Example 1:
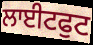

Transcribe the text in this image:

ਲਾਈਟਫੁਟ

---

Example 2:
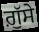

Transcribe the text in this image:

ਗ਼ੁੱਸੇ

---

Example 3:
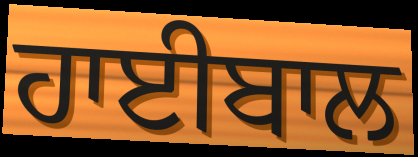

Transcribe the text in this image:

ਹਾਈਬਾਲ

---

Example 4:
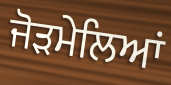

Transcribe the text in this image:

ਜੋੜਮੇਲਿਆਂ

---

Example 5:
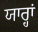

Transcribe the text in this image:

ਯਾਰ੍ਹਾਂ